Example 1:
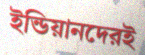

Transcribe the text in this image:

ইন্ডিয়ানদেরই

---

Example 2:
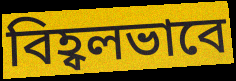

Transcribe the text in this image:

বিহ্বলভাবে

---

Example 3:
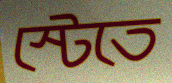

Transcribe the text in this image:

স্টেতে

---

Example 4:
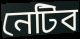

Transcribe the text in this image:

নেটিব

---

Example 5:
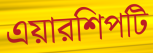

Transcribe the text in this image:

এয়ারশিপটি